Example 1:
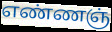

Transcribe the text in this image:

எண்ணஞ்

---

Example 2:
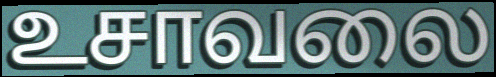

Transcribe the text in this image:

உசாவலை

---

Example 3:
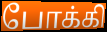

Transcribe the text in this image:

போக்கி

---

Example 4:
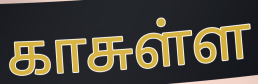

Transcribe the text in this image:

காசுள்ள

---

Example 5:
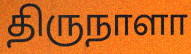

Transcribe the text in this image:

திருநாளா